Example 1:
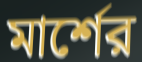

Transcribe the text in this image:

মার্শের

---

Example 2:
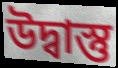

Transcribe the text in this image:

উদ্বাস্তু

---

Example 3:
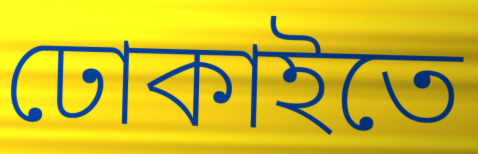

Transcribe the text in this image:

ঢোকাইতে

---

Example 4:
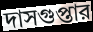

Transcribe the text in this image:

দাসগুপ্তার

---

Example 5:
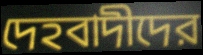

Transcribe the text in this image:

দেহবাদীদের